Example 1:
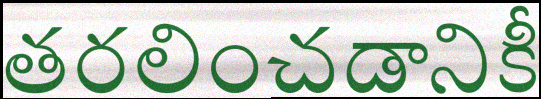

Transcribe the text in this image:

తరలించడానికీ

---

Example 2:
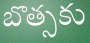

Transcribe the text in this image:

బొత్సకు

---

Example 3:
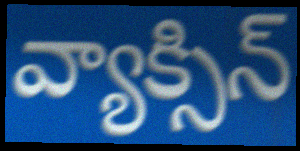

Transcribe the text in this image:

వ్యాక్సిన్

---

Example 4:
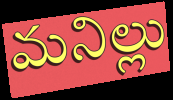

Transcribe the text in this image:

మనిల్లు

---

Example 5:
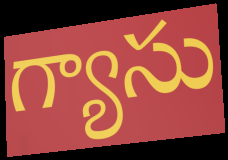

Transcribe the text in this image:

గ్యాసు